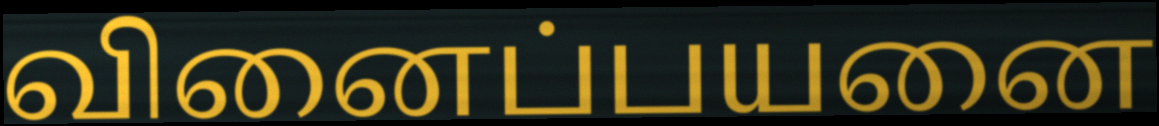
வினைப்பயனை